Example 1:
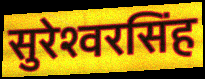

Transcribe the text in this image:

सुरेश्वरसिंह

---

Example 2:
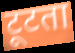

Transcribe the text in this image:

टूटता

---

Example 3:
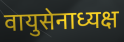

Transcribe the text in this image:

वायुसेनाध्यक्ष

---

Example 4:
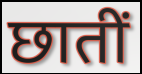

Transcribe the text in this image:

छातीं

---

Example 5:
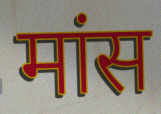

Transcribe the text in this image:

मांस